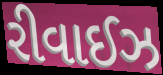
રીવાઈઝ